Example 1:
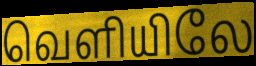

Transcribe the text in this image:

வெளியிலே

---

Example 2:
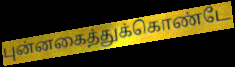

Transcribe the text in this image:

புன்னகைத்துக்கொண்டே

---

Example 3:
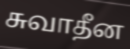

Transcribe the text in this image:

சுவாதீன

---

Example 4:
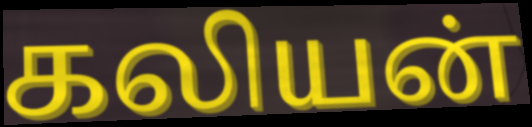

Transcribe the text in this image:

கலியன்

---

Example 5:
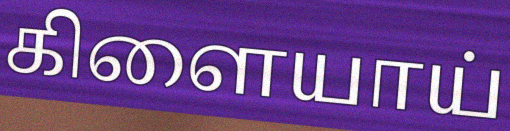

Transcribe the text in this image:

கிளையாய்